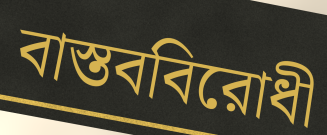
বাস্তববিরোধী